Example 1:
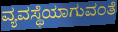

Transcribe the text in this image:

ವ್ಯವಸ್ಥೆಯಾಗುವಂತೆ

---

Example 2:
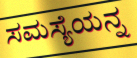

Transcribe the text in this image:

ಸಮಸ್ಯೆಯನ್ನ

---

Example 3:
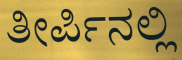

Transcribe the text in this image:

ತೀರ್ಪಿನಲ್ಲಿ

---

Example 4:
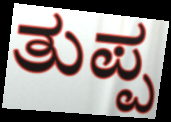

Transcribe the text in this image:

ತುಪ್ಪ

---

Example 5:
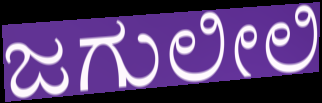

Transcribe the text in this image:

ಜಗುಲೀಲಿ